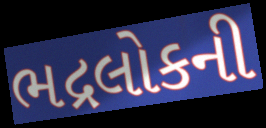
ભદ્રલોકની